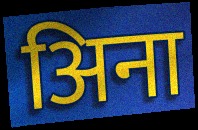
अिना